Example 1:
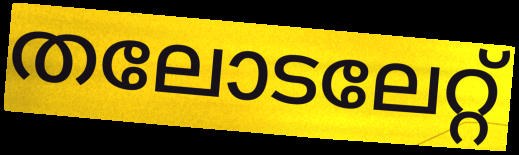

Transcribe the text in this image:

തലോടലേറ്റ്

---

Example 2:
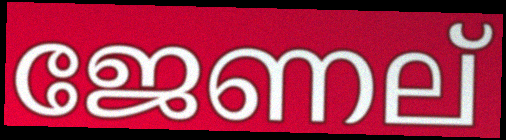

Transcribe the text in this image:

ജേണല്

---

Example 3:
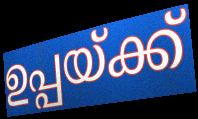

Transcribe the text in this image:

ഉപ്പയ്ക്ക്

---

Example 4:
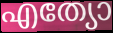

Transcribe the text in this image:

എത്യോ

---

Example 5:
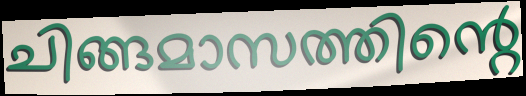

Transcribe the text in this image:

ചിങ്ങമാസത്തിന്റെ